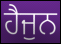
ਹੈਜੁਨ